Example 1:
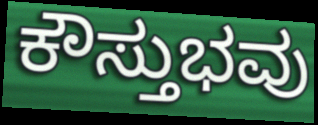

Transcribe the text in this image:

ಕೌಸ್ತುಭವು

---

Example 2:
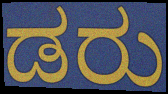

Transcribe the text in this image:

ಡರು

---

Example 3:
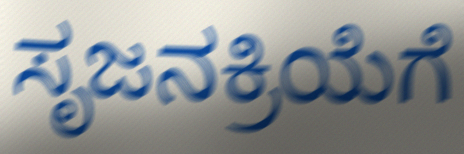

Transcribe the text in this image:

ಸೃಜನಕ್ರಿಯೆಗೆ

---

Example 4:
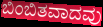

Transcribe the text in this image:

ಬಿಂಬಿತವಾದವು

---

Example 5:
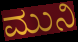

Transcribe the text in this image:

ಮುನಿ